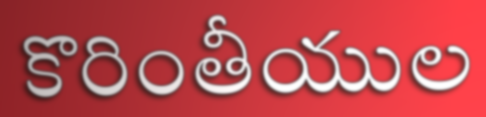
కొరింతీయుల